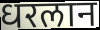
धरलान